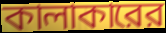
কালাকারের